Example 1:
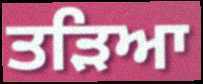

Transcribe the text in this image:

ਤੜਿਆ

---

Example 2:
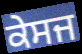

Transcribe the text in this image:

ਕੇਸਜ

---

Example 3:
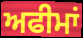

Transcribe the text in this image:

ਅਫੀਮਾਂ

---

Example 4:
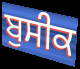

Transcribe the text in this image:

ਬੁਸੀਕ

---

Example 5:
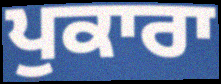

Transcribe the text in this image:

ਪੁਕਾਰਾ